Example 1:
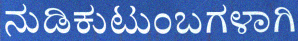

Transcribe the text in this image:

ನುಡಿಕುಟುಂಬಗಳಾಗಿ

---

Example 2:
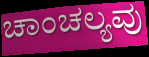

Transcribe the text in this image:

ಚಾಂಚಲ್ಯವು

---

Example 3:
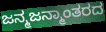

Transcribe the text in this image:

ಜನ್ಮಜನ್ಮಾಂತರದ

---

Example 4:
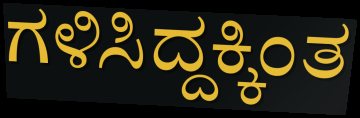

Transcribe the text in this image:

ಗಳಿಸಿದ್ದಕ್ಕಿಂತ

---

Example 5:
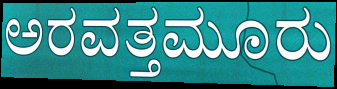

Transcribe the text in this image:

ಅರವತ್ತಮೂರು